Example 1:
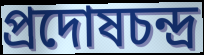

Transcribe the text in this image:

প্রদোষচন্দ্র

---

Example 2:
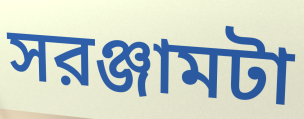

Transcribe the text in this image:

সরঞ্জামটা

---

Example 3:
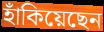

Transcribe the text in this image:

হাঁকিয়েছেন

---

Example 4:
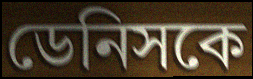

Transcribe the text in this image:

ডেনিসকে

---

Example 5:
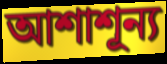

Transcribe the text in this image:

আশাশূন্য